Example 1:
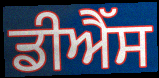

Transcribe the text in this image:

ਡੀਐੱਸ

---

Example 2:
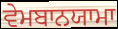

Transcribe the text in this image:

ਵੇਮਬਾਨਯਾਮਾ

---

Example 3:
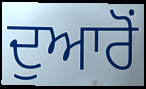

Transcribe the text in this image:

ਦੁਆਰੋਂ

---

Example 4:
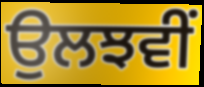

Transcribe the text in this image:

ਉਲਝਵੀਂ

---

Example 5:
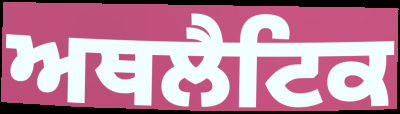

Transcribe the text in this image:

ਅਥਲੈਟਿਕ